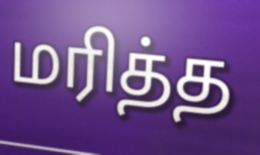
மரித்த